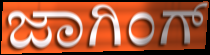
ಜಾಗಿಂಗ್